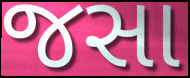
જસા